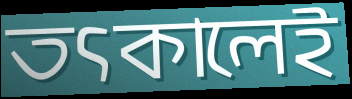
তৎকালেই